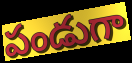
పండుగా